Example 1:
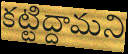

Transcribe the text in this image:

కట్టిద్దామని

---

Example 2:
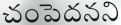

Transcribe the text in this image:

చంపెదనని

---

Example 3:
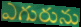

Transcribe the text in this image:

ఎగురును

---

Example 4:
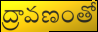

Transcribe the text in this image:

ద్రావణంతో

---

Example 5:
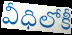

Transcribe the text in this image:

వీధిలోకీ